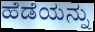
ಹೆಡೆಯನ್ನು